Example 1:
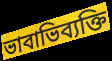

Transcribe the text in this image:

ভাবাভিব্যক্তি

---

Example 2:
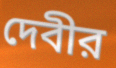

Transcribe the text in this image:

দেবীর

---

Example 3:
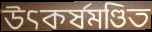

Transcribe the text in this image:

উৎকর্ষমণ্ডিত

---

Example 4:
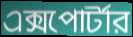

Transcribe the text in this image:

এক্সপোর্টার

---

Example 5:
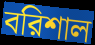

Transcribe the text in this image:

বরিশাল